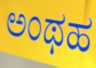
ಅಂಥಹ